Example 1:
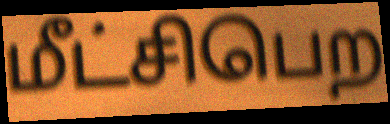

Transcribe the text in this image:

மீட்சிபெற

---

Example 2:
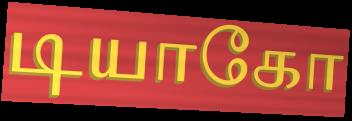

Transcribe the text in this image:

டியாகோ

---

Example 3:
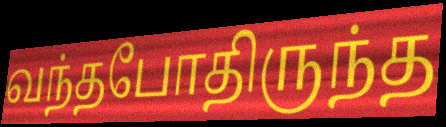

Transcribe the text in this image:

வந்தபோதிருந்த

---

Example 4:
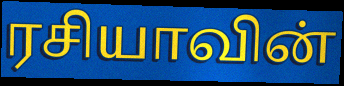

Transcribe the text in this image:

ரசியாவின்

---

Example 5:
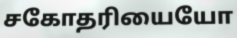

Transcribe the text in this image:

சகோதரியையோ